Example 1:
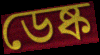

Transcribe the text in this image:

ডেষ্ক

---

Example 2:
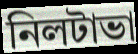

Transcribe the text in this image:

নিলটাভা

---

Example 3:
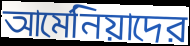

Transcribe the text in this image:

আর্মেনিয়াদের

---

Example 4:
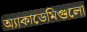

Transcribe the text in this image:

অ্যাকাডেমিগুলো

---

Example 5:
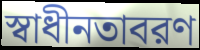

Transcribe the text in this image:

স্বাধীনতাবরণ